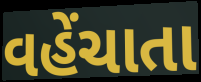
વહેંચાતા